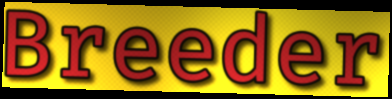
Breeder